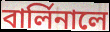
বার্লিনালে